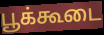
பூக்கூடை